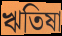
ঋতিষা